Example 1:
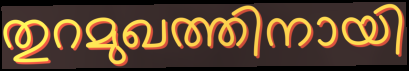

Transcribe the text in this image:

തുറമുഖത്തിനായി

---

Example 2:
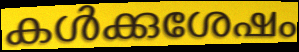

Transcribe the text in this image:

കൾക്കുശേഷം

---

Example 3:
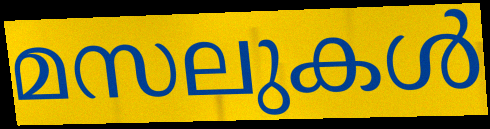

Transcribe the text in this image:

മസലുകൾ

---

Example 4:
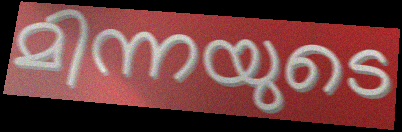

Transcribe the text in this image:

മിന്നയുടെ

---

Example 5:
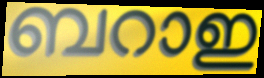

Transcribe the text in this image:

ബറാഇ